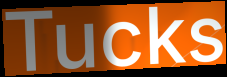
Tucks